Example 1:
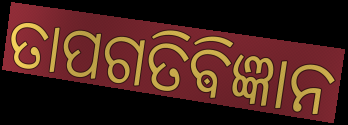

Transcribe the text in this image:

ତାପଗତିଵିଜ୍ଞାନ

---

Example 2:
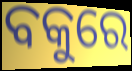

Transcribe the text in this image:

ବକୁରେ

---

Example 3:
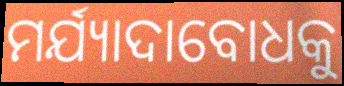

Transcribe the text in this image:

ମର୍ଯ୍ୟାଦାବୋଧକୁ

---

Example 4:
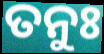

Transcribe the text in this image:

ତନୁଃ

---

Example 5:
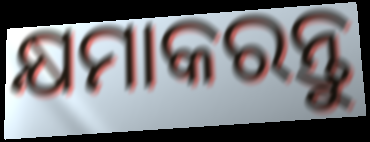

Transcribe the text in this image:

କ୍ଷମାକରନ୍ତୁ